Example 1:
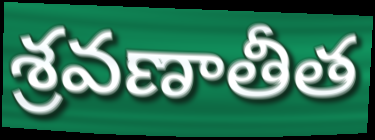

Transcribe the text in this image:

శ్రవణాతీత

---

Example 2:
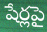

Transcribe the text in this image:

షేర్లపై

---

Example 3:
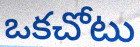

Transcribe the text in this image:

ఒకచోటు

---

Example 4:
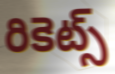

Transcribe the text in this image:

రికెట్స్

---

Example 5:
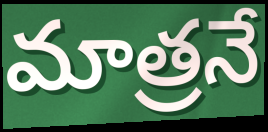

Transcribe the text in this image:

మాత్రనే